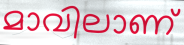
മാവിലാണ്